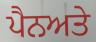
ਪੈਨਅਤੇ